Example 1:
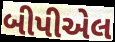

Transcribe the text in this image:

બીપીએલ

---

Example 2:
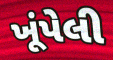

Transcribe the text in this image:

ખૂંપેલી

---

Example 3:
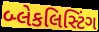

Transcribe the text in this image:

બ્લેકલિસ્ટિંગ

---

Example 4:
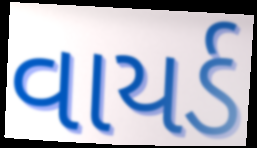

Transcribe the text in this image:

વાયર્ડ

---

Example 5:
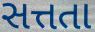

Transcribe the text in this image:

સત્તતા